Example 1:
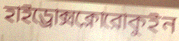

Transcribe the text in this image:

হাইড্রোক্সক্লোরোকুইন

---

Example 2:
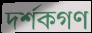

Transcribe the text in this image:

দর্শকগণ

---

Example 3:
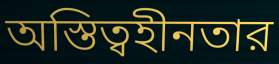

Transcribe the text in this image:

অস্তিত্বহীনতার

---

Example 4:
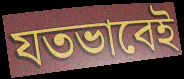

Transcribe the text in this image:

যতভাবেই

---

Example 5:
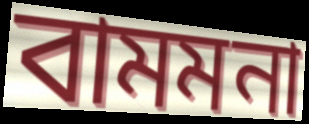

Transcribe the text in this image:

বামমনা